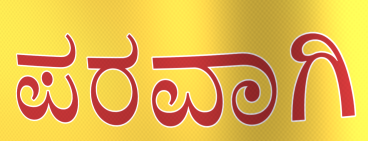
ಪರವಾಗಿ